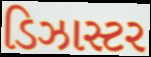
ડિઝાસ્ટર